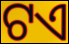
ଟଏ